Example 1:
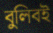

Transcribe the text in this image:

বুলিবই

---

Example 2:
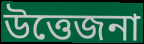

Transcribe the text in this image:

উত্তেজনা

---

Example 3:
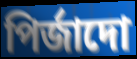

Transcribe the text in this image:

পিৰ্জাদো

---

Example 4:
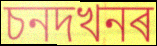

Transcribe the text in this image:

চনদখনৰ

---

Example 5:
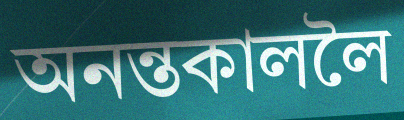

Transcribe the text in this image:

অনন্তকাললৈ